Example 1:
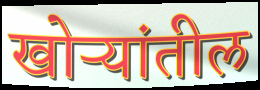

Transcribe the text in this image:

खोऱ्यांतील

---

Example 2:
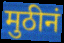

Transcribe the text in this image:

मुठीनं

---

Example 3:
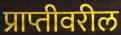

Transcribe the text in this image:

प्राप्तीवरील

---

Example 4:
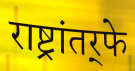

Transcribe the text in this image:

राष्ट्रांतर्फे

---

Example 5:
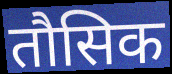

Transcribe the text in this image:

तौसिक